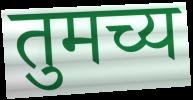
तुमच्य